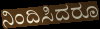
ನಿಂದಿಸಿದರೂ